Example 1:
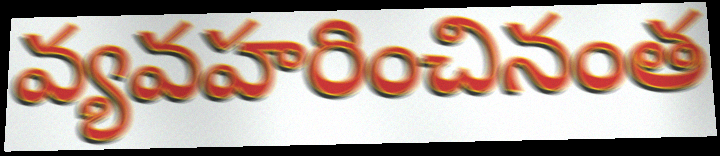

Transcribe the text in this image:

వ్యవహరించినంత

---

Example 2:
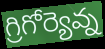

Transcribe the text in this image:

గ్రిగోర్యెవ్న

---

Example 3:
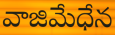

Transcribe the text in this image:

వాజిమేధేన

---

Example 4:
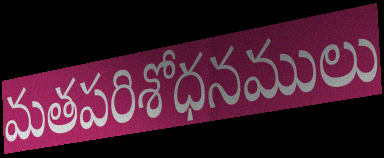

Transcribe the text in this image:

మతపరిశోధనములు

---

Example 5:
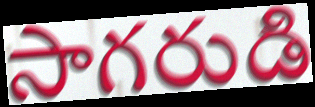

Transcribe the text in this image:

సాగరుడి